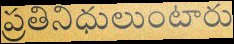
ప్రతినిధులుంటారు